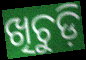
ଖିଚୁଡ଼ି